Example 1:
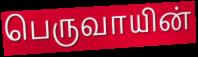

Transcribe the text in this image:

பெருவாயின்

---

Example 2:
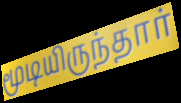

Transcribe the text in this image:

மூடியிருந்தார்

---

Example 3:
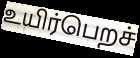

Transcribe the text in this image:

உயிர்பெறச்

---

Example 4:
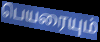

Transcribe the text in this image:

பெயரையும்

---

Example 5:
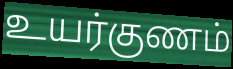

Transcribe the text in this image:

உயர்குணம்